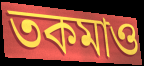
তকমাও